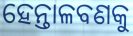
ହେନ୍ତାଳବଣକୁ